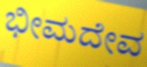
ಭೀಮದೇವ